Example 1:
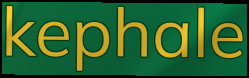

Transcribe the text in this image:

kephale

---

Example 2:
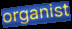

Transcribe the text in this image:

organist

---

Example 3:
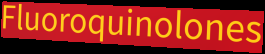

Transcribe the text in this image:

Fluoroquinolones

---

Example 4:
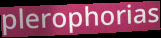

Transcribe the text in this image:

plerophorias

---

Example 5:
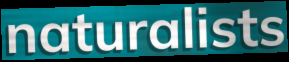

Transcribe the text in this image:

naturalists